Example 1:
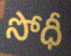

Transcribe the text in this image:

సోధీ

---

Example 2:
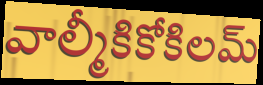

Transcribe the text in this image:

వాల్మీకికోకిలమ్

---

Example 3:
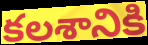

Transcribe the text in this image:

కలశానికి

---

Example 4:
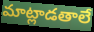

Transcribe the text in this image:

మాట్లాడతాలే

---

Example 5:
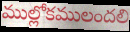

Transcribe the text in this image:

ముల్లోకములందలి